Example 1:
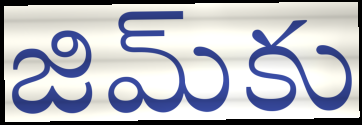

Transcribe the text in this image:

జిమ్‌కు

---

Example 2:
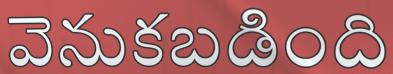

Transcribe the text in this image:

వెనుకబడింది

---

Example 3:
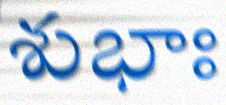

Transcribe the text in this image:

శుభాః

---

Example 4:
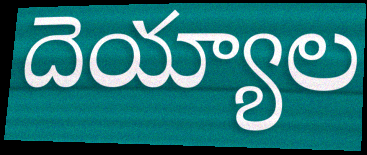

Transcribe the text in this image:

దెయ్యాల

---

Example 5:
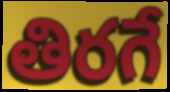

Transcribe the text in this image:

తిరగే